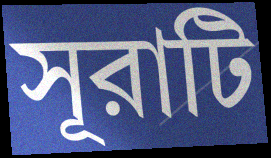
সূরাটি